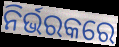
ନିର୍ଭରକରେ